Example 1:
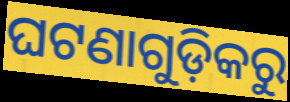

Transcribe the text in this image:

ଘଟଣାଗୁଡ଼ିକରୁ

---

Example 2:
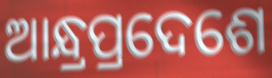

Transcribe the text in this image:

ଆନ୍ଧ୍ରପ୍ରଦେଶେ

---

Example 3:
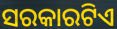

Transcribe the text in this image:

ସରକାରଟିଏ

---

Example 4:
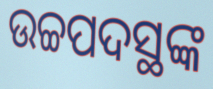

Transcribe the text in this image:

ଉଚ୍ଚପଦସ୍ଥଙ୍କ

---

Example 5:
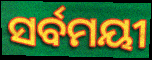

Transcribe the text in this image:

ସର୍ବମୟୀ